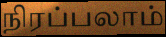
நிரப்பலாம்